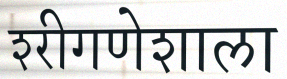
श्रीगणेशाला